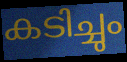
കടിച്ചും